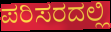
ಪರಿಸರದಲ್ಲಿ